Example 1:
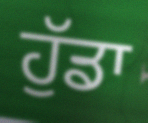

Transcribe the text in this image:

ਹੁੱਡਾ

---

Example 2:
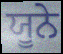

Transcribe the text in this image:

ਯੂਨੇ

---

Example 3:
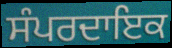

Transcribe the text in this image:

ਸੰਪਰਦਾਇਕ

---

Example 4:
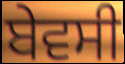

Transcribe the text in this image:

ਬੇਵਸੀ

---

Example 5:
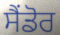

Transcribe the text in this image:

ਸੈਂਡੋਰ